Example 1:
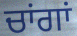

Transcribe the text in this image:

ਚਾਂਗਾਂ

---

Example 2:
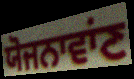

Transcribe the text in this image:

ਯੋਜਨਾਵਾਂਣ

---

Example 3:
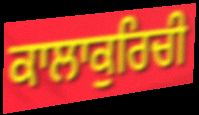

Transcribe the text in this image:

ਕਾਲਾਕੁਰਿਚੀ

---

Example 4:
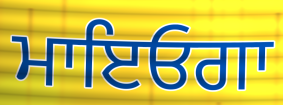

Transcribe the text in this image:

ਮਾਇਓਗਾ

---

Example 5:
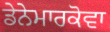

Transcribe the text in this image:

ਡੇਨੇਮਾਰਕੋਵਾ